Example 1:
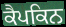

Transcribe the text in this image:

ਕੈਪਕਿਨ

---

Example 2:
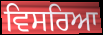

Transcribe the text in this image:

ਵਿਸਰਿਆ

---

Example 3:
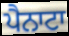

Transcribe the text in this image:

ਪੈਨਾਟਾ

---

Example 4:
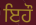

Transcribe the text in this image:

ਇਹੌ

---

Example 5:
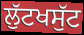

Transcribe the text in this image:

ਲੁੱਟਖਸੁੱਟ